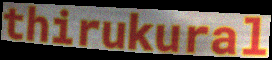
thirukural